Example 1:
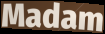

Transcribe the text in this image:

Madam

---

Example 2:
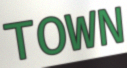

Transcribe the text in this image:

TOWN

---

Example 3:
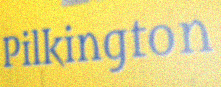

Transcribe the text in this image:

Pilkington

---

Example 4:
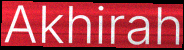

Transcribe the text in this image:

Akhirah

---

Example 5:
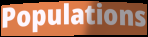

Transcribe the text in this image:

Populations